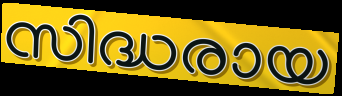
സിദ്ധരായ